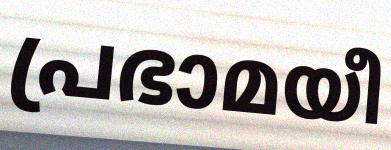
പ്രഭാമയീ